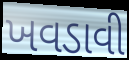
ખવડાવી